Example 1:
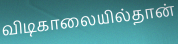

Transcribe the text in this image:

விடிகாலையில்தான்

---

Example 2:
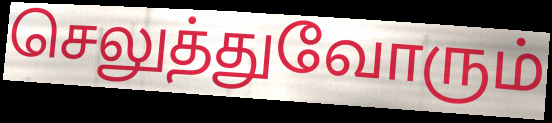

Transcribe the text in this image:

செலுத்துவோரும்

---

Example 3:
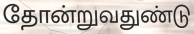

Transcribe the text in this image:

தோன்றுவதுண்டு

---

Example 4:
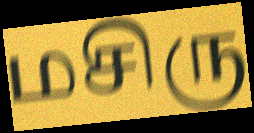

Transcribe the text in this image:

மசிரு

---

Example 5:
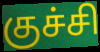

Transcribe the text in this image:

குச்சி